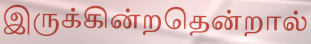
இருக்கின்றதென்றால்